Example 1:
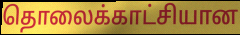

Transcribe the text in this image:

தொலைக்காட்சியான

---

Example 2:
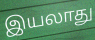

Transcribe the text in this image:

இயலாது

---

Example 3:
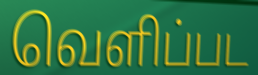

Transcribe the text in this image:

வெளிப்பட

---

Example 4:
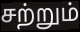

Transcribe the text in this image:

சற்றும்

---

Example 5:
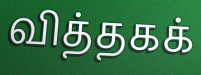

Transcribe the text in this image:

வித்தகக்